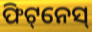
ଫିଟ୍‌ନେସ୍